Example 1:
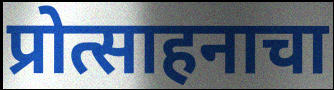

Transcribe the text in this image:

प्रोत्साहनाचा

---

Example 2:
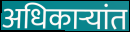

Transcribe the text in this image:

अधिकाऱ्यांत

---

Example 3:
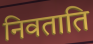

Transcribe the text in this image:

निवताति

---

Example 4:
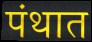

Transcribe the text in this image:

पंथात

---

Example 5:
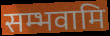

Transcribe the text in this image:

सम्भवामि